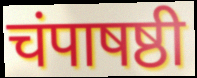
चंपाषष्ठी